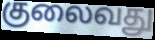
குலைவது